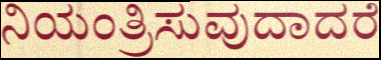
ನಿಯಂತ್ರಿಸುವುದಾದರೆ